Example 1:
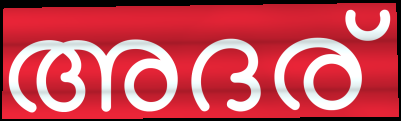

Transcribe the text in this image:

അദര്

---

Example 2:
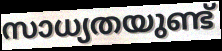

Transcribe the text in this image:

സാധ്യതയുണ്ട്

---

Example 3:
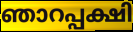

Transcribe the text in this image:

ഞാറപ്പക്ഷി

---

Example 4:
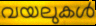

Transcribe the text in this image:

വയലുകൾ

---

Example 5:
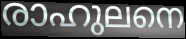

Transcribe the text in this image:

രാഹുലനെ